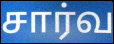
சார்வ